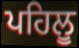
ਪਹਿਲੂ